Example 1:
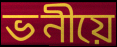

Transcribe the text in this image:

ভনীয়ে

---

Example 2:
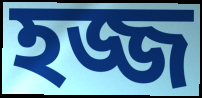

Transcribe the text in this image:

হজ্জ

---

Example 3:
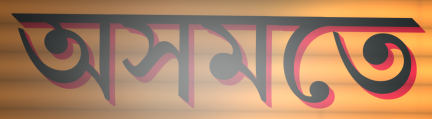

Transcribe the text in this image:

অসমতে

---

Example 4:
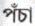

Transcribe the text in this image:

পঁচা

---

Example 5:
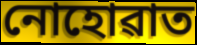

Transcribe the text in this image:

নোহোৱাত